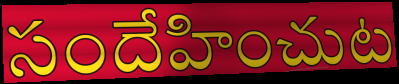
సందేహించుట